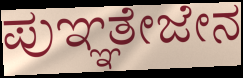
ಪುಞ್ಞತೇಜೇನ